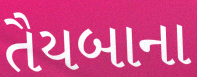
તૈયબાના